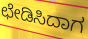
ಛೇಡಿಸಿದಾಗ